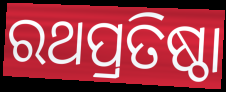
ରଥପ୍ରତିଷ୍ଠା